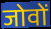
जोवों